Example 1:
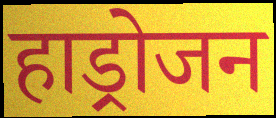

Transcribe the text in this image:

हाड्रोजन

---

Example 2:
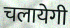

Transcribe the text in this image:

चलायेगी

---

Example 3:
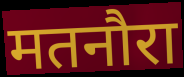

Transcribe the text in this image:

मतनौरा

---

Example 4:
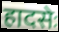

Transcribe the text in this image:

हादसेः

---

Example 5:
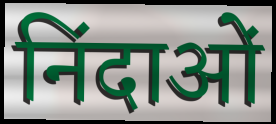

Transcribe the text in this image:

निंदाओं